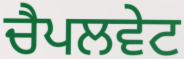
ਚੈਪਲਵੇਟ